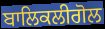
ਬਾਲਿਕਲੀਗੋਲ